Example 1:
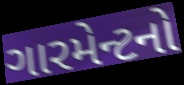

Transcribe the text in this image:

ગારમેન્ટનો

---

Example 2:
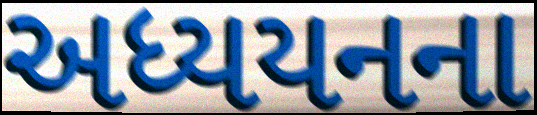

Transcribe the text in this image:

અધ્યયનના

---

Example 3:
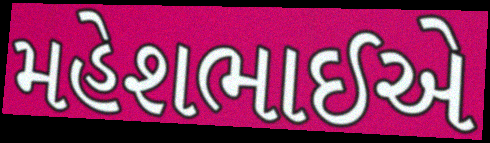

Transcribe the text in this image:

મહેશભાઈએ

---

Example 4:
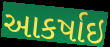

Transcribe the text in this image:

આકર્ષાઇ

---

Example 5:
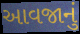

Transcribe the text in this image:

આવજાનું